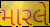
મારલે